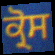
ਕ੍ਰੋਸ